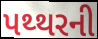
પથ્થરની